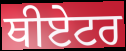
ਥੀਏਟਰ